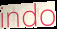
indo